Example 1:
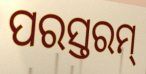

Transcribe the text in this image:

ପରସ୍ତରମ୍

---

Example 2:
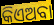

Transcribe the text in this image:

କିଏଅବା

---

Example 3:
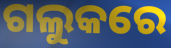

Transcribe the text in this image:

ଗଲୁକରେ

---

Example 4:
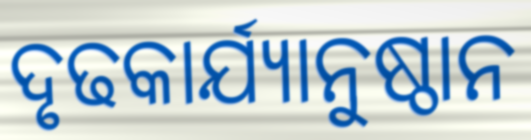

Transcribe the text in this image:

ଦୃଢକାର୍ଯ୍ୟାନୁଷ୍ଠାନ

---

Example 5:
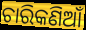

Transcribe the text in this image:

ଚାରିକଣିଆଁ